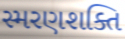
સ્મરણશક્તિ